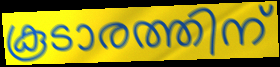
കൂടാരത്തിന്